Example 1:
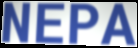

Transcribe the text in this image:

NEPA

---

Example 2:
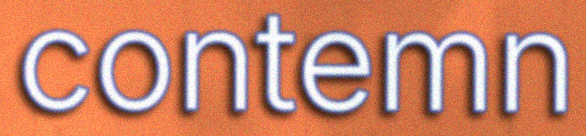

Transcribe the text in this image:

contemn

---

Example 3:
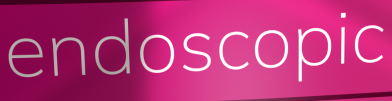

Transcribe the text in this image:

endoscopic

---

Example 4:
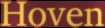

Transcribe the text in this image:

Hoven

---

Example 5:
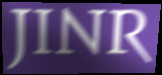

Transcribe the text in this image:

JINR